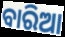
ବାରିଆ